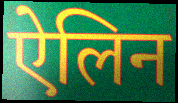
ऐलिन